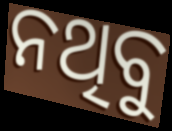
ନଥିବୁ